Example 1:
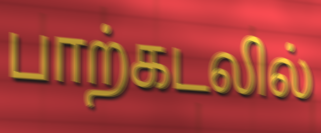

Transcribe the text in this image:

பாற்கடலில்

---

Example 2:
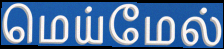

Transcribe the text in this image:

மெய்மேல்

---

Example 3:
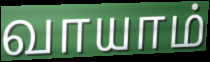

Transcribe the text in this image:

வாயாம்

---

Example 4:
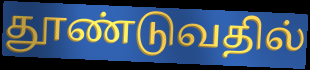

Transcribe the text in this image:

தூண்டுவதில்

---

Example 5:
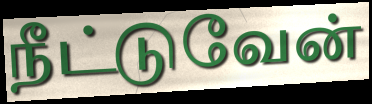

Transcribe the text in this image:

நீட்டுவேன்